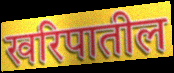
खरिपातील